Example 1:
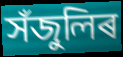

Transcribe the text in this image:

সঁজুলিৰ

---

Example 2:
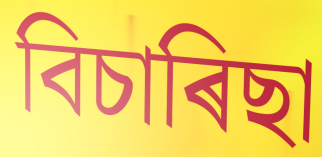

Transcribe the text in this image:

বিচাৰিছা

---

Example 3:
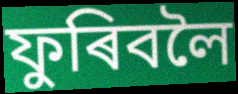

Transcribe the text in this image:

ফুৰিবলৈ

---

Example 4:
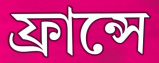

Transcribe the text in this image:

ফ্ৰান্সে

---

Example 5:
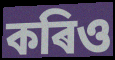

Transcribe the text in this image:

কৰিও